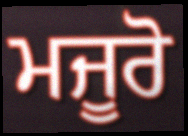
ਮਜੂਰੋ